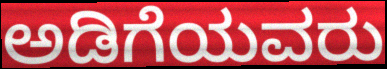
ಅಡಿಗೆಯವರು